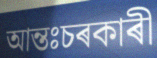
আন্তঃচৰকাৰী